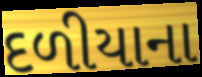
દળીયાના